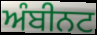
ਅੰਬੀਨਟ